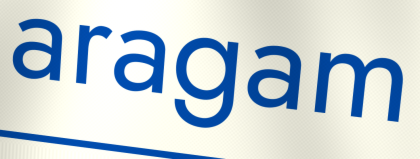
aragam